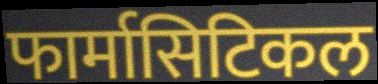
फार्मासिटिकल